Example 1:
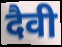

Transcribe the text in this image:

दैवी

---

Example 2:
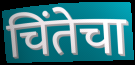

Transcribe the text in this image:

चिंतेचा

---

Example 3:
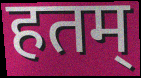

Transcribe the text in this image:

हतम्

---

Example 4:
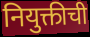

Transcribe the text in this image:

नियुक्तीची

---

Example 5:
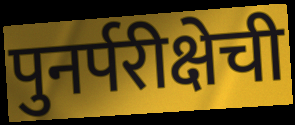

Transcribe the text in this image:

पुनर्परीक्षेची